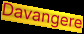
Davangere